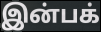
இன்பக்